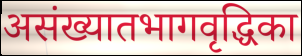
असंख्यातभागवृद्धिका